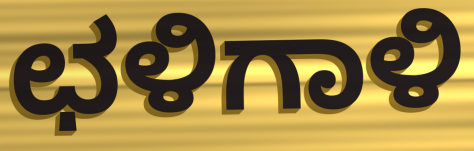
ಛಳಿಗಾಳಿ